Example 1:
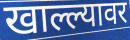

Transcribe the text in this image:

खाल्ल्यावर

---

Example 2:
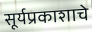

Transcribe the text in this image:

सूर्यप्रकाशाचे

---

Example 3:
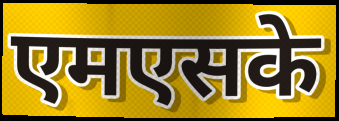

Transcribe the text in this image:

एमएसके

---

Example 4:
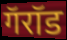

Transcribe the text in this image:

गॅरॉड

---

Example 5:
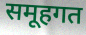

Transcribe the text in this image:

समूहगत